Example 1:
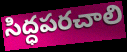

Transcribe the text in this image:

సిద్ధపరచాలి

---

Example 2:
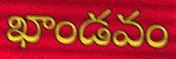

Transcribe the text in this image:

ఖాండవం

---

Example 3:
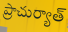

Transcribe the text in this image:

ప్రాచుర్యాత్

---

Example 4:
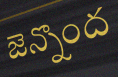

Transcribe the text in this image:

జెన్నొంద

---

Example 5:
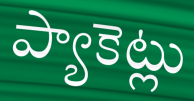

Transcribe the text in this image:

ప్యాకెట్లు